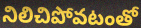
నిలిచిపోవటంతో